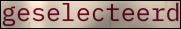
geselecteerd